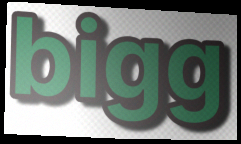
bigg